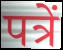
पत्रें